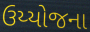
ઉય્યોજના